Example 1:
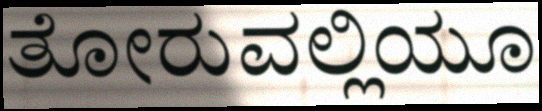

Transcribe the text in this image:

ತೋರುವಲ್ಲಿಯೂ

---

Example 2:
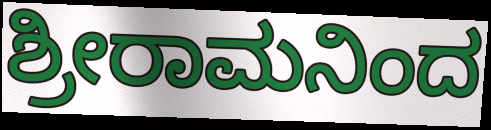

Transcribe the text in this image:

ಶ್ರೀರಾಮನಿಂದ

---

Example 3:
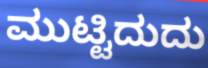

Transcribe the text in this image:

ಮುಟ್ಟಿದುದು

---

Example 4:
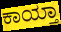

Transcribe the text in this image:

ಕಾಯ್ತಾ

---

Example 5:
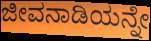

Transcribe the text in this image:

ಜೀವನಾಡಿಯನ್ನೇ